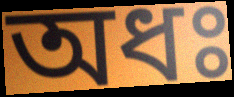
অধঃ